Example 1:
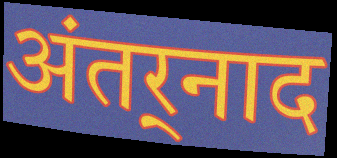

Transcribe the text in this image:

अंतर्नाद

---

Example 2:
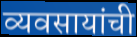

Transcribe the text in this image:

व्यवसायांची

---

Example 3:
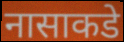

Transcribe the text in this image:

नासाकडे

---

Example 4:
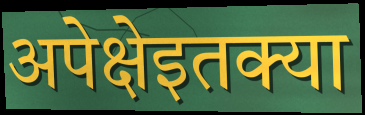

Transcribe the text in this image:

अपेक्षेइतक्या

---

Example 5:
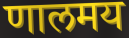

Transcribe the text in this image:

णालमय